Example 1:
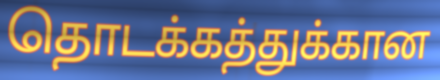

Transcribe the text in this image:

தொடக்கத்துக்கான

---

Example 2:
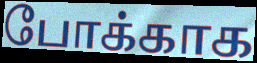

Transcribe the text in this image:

போக்காக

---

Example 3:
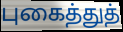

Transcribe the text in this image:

புகைத்துத்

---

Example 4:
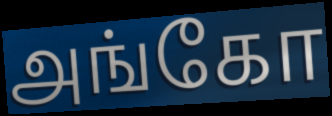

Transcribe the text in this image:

அங்கோ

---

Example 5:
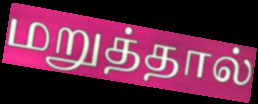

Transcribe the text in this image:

மறுத்தால்